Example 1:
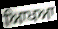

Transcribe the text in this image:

ਆਿਖਆ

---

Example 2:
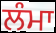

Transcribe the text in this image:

ਲੰਮਾ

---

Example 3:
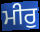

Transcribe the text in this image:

ਮੀਰੁ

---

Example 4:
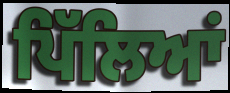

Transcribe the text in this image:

ਪਿੱਲਿਆਂ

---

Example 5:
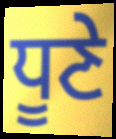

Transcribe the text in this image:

ਧੂਣੇ